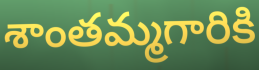
శాంతమ్మగారికి